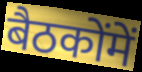
बैठकोंमें